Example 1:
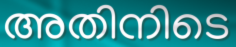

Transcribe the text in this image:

അതിനിടെ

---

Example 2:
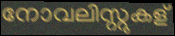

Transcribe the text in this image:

നോവലിസ്റ്റുകള്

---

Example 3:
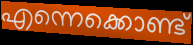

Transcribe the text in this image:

എന്നെക്കൊണ്ട്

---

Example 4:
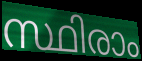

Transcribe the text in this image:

സ്ഥിരാം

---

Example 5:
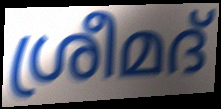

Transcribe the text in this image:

ശ്രീമദ്